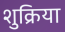
शुक्रिया